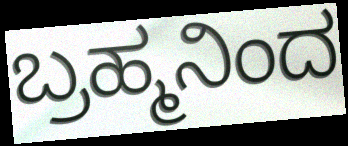
ಬ್ರಹ್ಮನಿಂದ